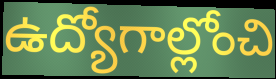
ఉద్యోగాల్లోంచి